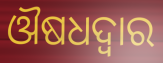
ଔଷଧଦ୍ୱାର